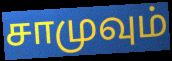
சாமுவும்